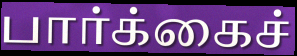
பார்க்கைச்